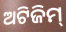
ଅଟିଜିମ୍